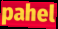
pahel